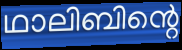
ഥാലിബിന്റെ